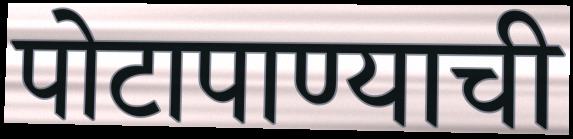
पोटापाण्याची